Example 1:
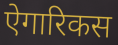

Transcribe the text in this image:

ऐगारिकस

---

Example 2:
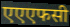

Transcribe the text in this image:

एएएफसी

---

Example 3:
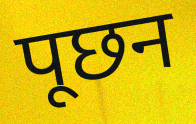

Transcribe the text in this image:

पूछन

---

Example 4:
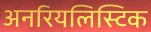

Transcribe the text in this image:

अनरियलिस्टिक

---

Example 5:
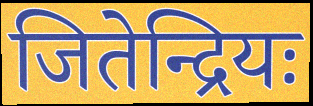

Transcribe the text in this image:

जितेन्द्रियः